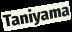
Taniyama